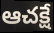
ఆచక్షే